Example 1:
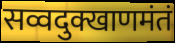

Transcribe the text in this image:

सव्वदुक्खाणमंतं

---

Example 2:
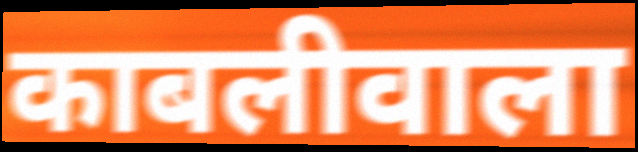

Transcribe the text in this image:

काबलीवाला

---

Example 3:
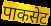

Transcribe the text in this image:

पाकसेट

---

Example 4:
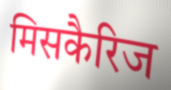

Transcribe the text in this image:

मिसकैरिज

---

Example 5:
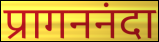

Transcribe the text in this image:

प्रागननंदा